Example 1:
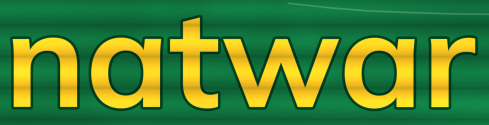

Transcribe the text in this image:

natwar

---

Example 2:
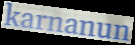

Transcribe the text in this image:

karnanun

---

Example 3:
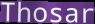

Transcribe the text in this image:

Thosar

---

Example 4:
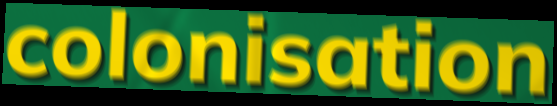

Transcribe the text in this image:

colonisation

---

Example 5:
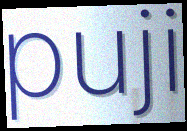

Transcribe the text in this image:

puji